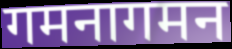
गमनागमन